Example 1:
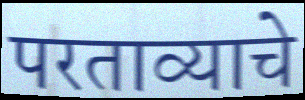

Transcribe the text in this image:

परताव्याचे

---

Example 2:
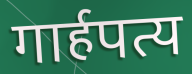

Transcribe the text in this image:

गार्हपत्य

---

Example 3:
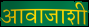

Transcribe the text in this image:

आवाजाशी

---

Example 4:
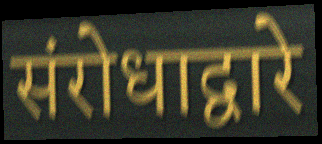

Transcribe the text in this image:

संरोधाद्वारे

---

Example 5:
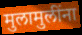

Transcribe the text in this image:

मुलामुलींना